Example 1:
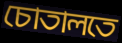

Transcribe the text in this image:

চোতালতে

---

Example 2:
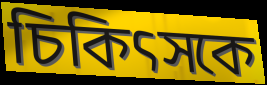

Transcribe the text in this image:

চিকিৎসকে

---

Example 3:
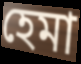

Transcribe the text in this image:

হেমা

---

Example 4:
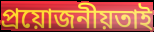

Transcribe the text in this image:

প্ৰয়োজনীয়তাই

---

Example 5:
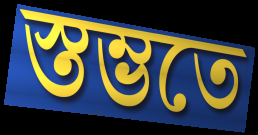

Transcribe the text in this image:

স্তম্ভতে